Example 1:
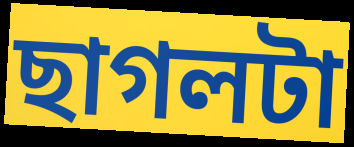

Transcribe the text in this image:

ছাগলটা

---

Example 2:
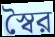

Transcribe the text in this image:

স্বৈর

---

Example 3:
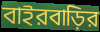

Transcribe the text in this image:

বাইরবাড়ির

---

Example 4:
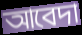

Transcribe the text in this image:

আবেদা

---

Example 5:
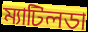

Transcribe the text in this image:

ম্যাটিলডা